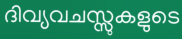
ദിവ്യവചസ്സുകളുടെ